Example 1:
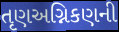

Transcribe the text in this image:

તૃણઅગ્નિકણની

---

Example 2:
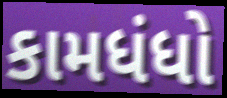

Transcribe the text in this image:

કામધંધો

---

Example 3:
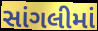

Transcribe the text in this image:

સાંગલીમાં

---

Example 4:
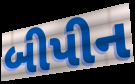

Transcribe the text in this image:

બીપીન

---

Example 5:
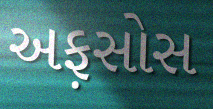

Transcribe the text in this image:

અફ઼સોસ